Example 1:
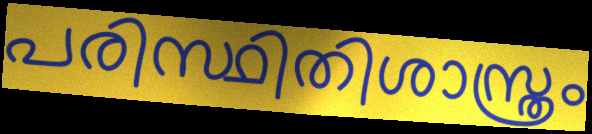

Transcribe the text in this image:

പരിസ്ഥിതിശാസ്ത്രം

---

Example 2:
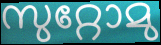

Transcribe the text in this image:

സുറ്റോമു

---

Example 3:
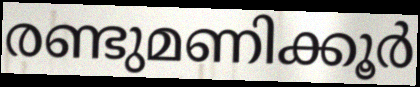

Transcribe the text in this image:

രണ്ടുമണിക്കൂർ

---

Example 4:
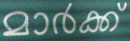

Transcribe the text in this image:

മാർക്ക്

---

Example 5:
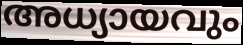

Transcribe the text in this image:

അധ്യായവും